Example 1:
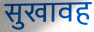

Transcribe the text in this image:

सुखावह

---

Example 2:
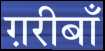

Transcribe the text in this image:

ग़रीबाँ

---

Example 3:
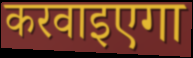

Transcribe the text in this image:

करवाइएगा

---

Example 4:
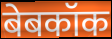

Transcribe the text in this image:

बेबकॉक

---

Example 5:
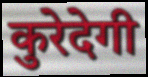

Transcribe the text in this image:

कुरेदेगी